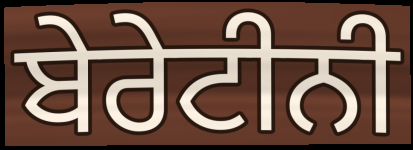
ਬੇਰੇਟੀਨੀ